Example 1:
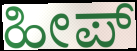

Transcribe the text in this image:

ಹೀಪ್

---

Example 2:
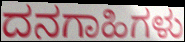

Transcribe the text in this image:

ದನಗಾಹಿಗಳು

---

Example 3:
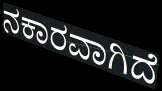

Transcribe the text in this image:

ನಕಾರವಾಗಿದೆ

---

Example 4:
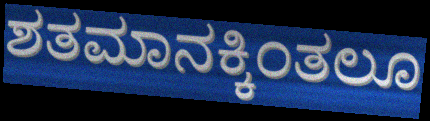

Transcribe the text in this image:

ಶತಮಾನಕ್ಕಿಂತಲೂ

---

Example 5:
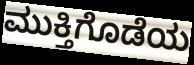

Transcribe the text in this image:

ಮುಕ್ತಿಗೊಡೆಯ